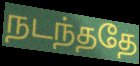
நடந்ததே